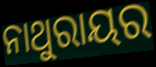
ନାଥୁରାୟର